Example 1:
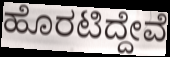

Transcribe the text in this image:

ಹೊರಟಿದ್ದೇವೆ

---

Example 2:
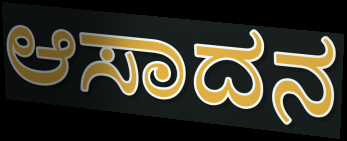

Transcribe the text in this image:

ಆಸಾದನ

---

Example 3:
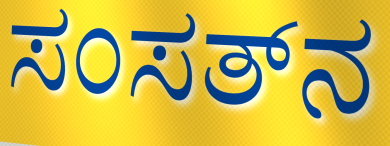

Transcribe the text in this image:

ಸಂಸತ್‌ನ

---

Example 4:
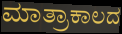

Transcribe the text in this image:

ಮಾತ್ರಾಕಾಲದ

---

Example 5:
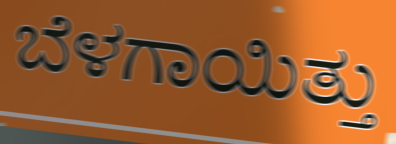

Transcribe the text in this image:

ಬೆಳಗಾಯಿತ್ತು